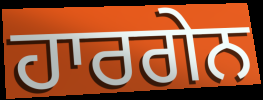
ਹਾਰਗੇਨ